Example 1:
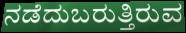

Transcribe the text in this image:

ನಡೆದುಬರುತ್ತಿರುವ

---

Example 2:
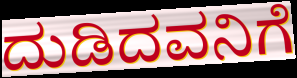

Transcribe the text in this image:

ದುಡಿದವನಿಗೆ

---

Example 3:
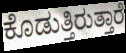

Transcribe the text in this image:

ಕೊಡುತ್ತಿರುತ್ತಾರೆ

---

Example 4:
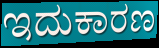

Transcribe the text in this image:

ಇದುಕಾರಣ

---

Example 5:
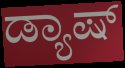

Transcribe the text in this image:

ಡ್ಯಾಷ್